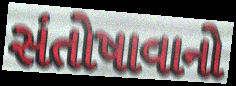
સંતોષાવાનો